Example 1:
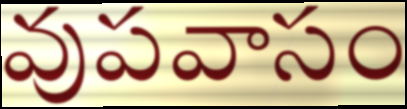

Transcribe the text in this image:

వుపవాసం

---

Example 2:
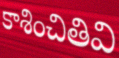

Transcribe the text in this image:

కాశించితివి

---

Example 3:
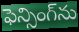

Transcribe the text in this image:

ఫెన్సింగ్‌ను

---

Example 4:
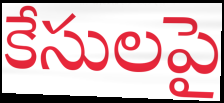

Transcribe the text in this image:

కేసులపై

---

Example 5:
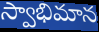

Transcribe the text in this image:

స్వాభిమాన